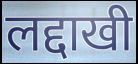
लद्दाखी